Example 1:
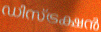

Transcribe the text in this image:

ഡിസ്ട്രക്ഷൻ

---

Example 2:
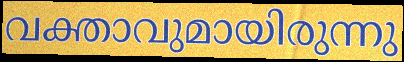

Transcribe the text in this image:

വക്താവുമായിരുന്നു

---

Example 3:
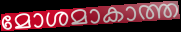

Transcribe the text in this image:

മോശമാകാത്ത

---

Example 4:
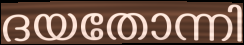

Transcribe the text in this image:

ദയതോന്നി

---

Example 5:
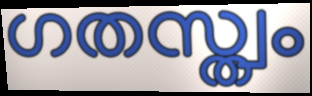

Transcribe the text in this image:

ഗതസ്ത്വം